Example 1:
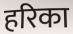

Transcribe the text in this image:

हरिका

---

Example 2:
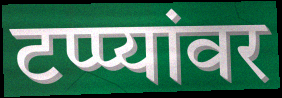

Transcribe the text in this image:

टप्प्यांवर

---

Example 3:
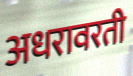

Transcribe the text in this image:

अधरावरती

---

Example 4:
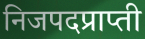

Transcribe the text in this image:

निजपदप्राप्ती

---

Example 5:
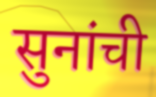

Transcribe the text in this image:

सुनांची